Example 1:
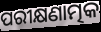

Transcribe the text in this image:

ପରୀକ୍ଷଣାତ୍ମକ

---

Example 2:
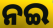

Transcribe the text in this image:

ନଇ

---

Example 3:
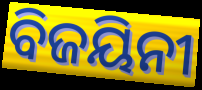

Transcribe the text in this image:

ବିଜୟିନୀ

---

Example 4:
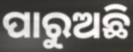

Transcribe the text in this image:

ପାରୁଅଛି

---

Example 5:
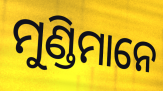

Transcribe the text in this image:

ମୁଣ୍ଡିମାନେ